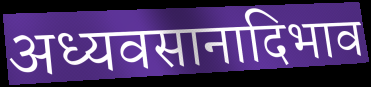
अध्यवसानादिभाव